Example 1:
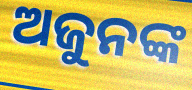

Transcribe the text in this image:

ଅଜୁନଙ୍କ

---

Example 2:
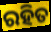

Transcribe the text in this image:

ରହିତ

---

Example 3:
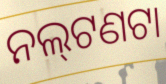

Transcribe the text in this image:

ନଲ୍‍ଟଣଟା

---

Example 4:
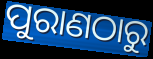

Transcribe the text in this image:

ପୁରାଣଠାରୁ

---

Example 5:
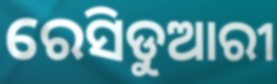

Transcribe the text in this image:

ରେସିଡୁଆରୀ